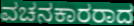
ವಚನಕಾರರಾದ